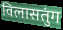
विलासतुंग